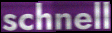
schnell